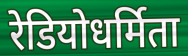
रेडियोधर्मिता